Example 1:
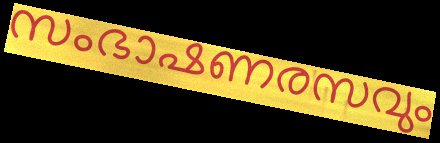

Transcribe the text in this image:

സംഭാഷണരസവും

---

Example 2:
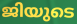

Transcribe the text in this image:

ജിയുടെ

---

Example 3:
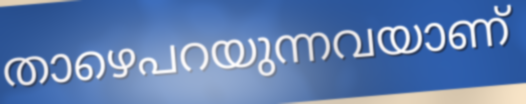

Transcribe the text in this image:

താഴെപറയുന്നവയാണ്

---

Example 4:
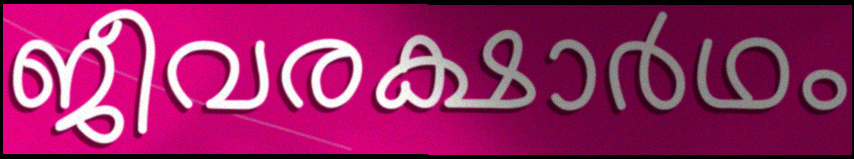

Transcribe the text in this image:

ജീവരക്ഷാർഥം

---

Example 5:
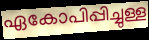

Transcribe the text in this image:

ഏകോപിപ്പിച്ചുള്ള